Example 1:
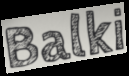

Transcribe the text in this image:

Balki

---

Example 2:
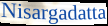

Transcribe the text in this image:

Nisargadatta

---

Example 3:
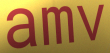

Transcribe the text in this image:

amv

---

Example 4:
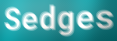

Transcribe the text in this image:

Sedges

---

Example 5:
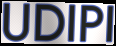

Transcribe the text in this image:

UDIPI